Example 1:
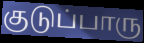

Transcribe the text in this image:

குடுப்பாரு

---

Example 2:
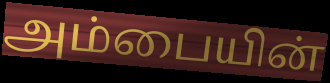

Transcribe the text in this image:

அம்பையின்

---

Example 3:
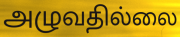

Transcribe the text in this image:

அழுவதில்லை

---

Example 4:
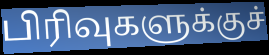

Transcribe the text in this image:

பிரிவுகளுக்குச்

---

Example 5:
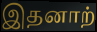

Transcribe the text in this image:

இதனாற்